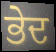
ਭੇਦ